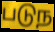
படுந